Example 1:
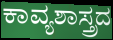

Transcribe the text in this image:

ಕಾವ್ಯಶಾಸ್ತ್ರದ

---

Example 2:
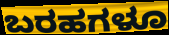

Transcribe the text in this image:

ಬರಹಗಳೂ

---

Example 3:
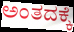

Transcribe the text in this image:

ಅಂತದಕ್ಕೆ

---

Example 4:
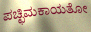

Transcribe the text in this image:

ಪಚ್ಛಿಮಕಾಯತೋ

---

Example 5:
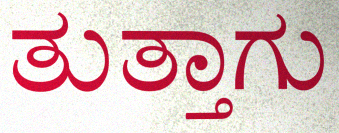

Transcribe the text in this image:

ತುತ್ತಾಗು